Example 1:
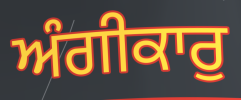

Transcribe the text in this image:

ਅੰਗੀਕਾਰੁ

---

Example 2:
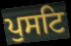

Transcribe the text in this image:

ਪੁਸਟਿ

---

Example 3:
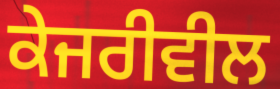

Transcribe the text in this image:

ਕੇਜਰੀਵੀਲ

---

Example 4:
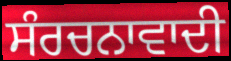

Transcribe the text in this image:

ਸੰਰਚਨਾਵਾਦੀ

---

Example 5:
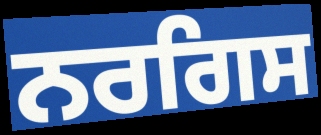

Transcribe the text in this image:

ਨਰਗਿਸ